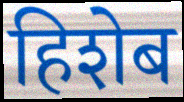
हिशेब